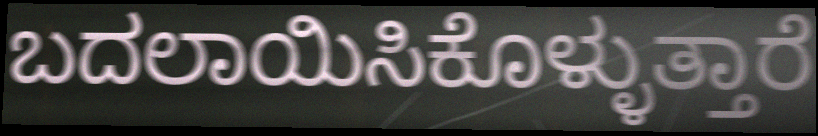
ಬದಲಾಯಿಸಿಕೊಳ್ಳುತ್ತಾರೆ